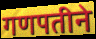
गणपतीने